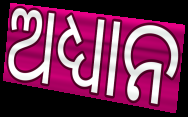
ଅଧ୍ୟାନ